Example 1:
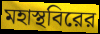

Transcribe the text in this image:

মহাস্থবিরের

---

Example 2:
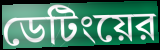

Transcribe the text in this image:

ডেটিংয়ের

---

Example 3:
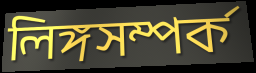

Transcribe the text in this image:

লিঙ্গসম্পর্ক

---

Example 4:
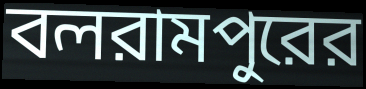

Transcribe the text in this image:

বলরামপুরের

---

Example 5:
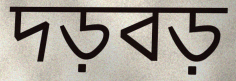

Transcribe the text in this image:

দড়বড়